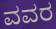
ವವರ